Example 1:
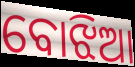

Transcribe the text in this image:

ବୋଝିଆ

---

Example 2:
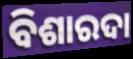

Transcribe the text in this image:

ବିଶାରଦା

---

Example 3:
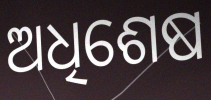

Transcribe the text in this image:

ଅଧିଶେଷ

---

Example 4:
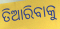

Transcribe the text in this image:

ତିଆରିବାକୁ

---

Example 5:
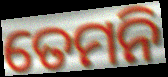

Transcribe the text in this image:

ତେମନି